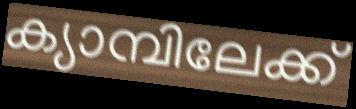
ക്യാമ്പിലേക്ക്